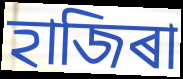
হাজিৰা